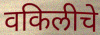
वकिलीचे